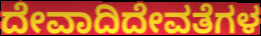
ದೇವಾದಿದೇವತೆಗಳ